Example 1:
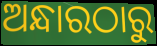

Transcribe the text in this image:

ଅନ୍ଧାରଠାରୁ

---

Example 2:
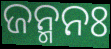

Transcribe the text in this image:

ଜନ୍ମନଃ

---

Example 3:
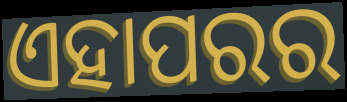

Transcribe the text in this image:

ଏହାପରର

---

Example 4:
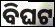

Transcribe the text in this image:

ବିଘଟ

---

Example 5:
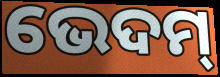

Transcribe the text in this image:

ଭେଦମ୍